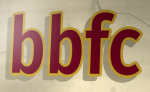
bbfc